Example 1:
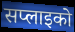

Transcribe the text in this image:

सप्लाइको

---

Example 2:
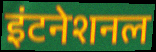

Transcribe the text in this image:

इंटनेशनल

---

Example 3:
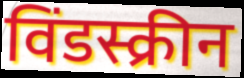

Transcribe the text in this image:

विंडस्क्रीन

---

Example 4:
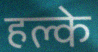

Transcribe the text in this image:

हल्‍के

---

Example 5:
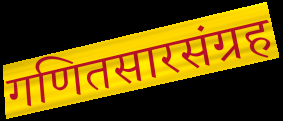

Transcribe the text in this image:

गणितसारसंग्रह